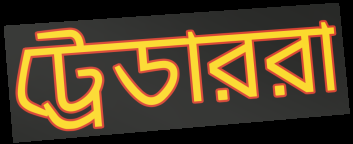
ট্রেডাররা